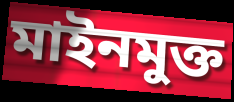
মাইনমুক্ত